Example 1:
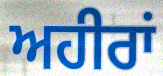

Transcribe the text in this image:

ਅਹੀਰਾਂ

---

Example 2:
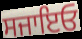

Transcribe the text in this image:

ਸਜਾਇਓ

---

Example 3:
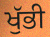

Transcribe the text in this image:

ਖੁੱਭੀ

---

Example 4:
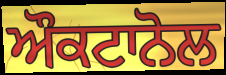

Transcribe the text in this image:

ਔਕਟਾਨੋਲ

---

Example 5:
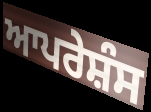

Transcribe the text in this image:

ਆਪਰੇਸ਼ੰਸ